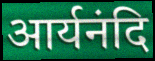
आर्यनंदि